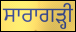
ਸਾਰਾਗੜ੍ਹੀ